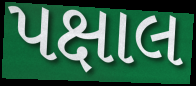
પક્ષાલ